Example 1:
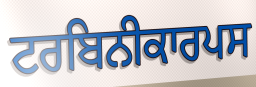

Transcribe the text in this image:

ਟਰਬਿਨੀਕਾਰਪਸ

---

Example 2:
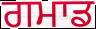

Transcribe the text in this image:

ਗਮਾਡ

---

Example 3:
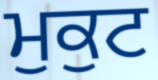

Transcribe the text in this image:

ਮੁਕੁਟ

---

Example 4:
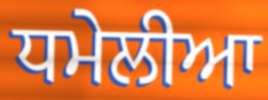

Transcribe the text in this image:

ਧਮੇਲੀਆ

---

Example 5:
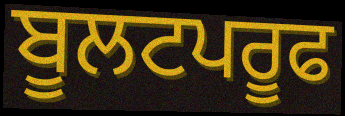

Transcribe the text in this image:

ਬੂਲਟਪਰੂਫ